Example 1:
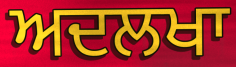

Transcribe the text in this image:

ਅਦਲਖਾ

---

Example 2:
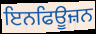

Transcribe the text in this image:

ਇਨਫਿਊਜ਼ਨ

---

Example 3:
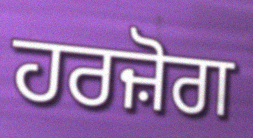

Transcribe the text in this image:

ਹਰਜ਼ੋਗ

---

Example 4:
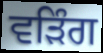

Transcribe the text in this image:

ਵੜਿੰਗ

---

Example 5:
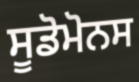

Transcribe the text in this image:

ਸੂਡੋਮੋਨਸ